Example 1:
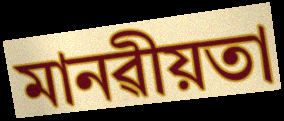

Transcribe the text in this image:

মানৱীয়তা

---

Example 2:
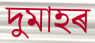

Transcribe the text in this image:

দুমাহৰ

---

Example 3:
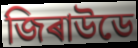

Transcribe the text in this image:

জিৰাউডে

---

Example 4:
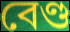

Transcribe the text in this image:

বেণ্ড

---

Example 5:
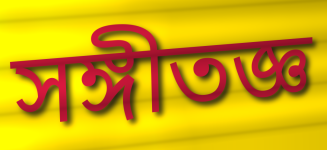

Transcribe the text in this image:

সঙ্গীতজ্ঞ